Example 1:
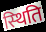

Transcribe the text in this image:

स्‍थिति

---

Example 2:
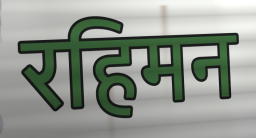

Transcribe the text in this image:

रहिमन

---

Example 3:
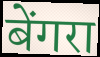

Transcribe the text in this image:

बेंगरा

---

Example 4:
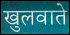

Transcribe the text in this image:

खुलवाते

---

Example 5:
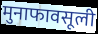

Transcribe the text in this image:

मुनाफावसूली